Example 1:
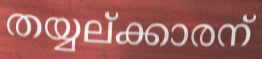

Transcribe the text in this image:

തയ്യല്ക്കാരന്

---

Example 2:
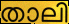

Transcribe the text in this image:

താലി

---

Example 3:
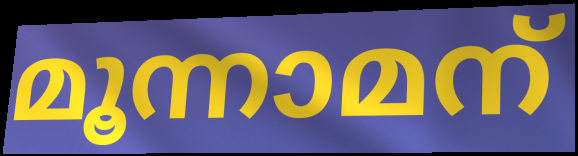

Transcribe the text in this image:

മൂന്നാമന്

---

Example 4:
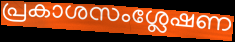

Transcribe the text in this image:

പ്രകാശസംശ്ലേഷണ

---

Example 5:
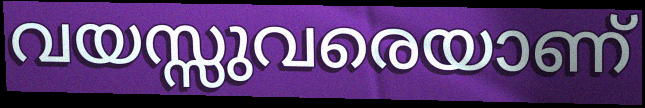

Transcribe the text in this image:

വയസ്സുവരെയാണ്